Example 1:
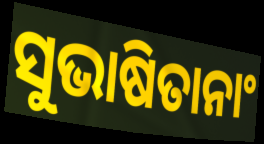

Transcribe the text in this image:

ସୁଭାଷିତାନାଂ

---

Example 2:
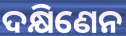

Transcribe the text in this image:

ଦକ୍ଷିଣେନ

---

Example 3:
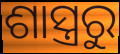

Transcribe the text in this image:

ଶାସ୍ତ୍ରରୁ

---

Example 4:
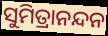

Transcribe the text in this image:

ସୁମିତ୍ରାନନ୍ଦନ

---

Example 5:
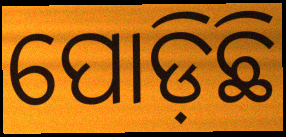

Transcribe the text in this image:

ପୋଡ଼ିଛି